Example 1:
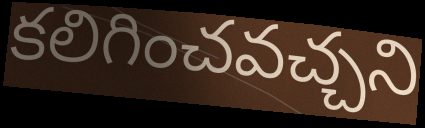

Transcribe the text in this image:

కలిగించవచ్చని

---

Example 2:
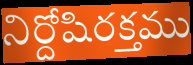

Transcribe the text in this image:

నిర్దోషిరక్తము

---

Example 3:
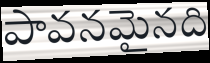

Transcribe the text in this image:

పావనమైనది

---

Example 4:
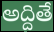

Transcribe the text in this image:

అద్దితే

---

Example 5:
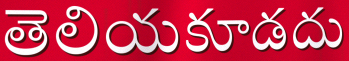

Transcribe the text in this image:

తెలియకూడదు